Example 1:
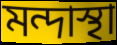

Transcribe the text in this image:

মন্দাস্থা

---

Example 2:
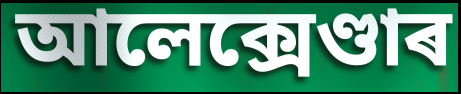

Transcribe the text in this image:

আলেক্সেণ্ডাৰ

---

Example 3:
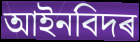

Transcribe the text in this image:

আইনবিদৰ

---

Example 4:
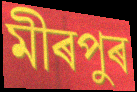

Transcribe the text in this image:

মীৰপুৰ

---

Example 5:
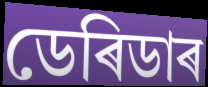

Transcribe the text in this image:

ডেৰিডাৰ